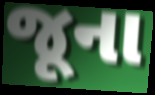
જૂના